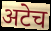
अटेच